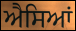
ਐਸਿਆਂ